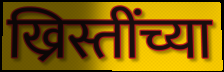
ख्रिस्तींच्या